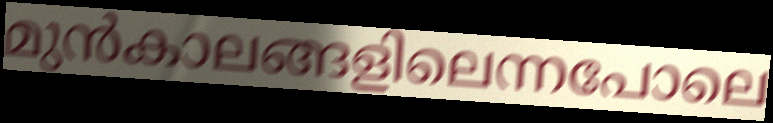
മുൻകാലങ്ങളിലെന്നപോലെ